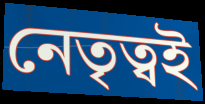
নেতৃত্বই